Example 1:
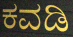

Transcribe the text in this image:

ಕವಡಿ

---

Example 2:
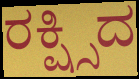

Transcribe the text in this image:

ರಕ್ಷ್ಸಿದ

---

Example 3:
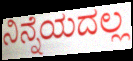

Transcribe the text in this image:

ನಿನ್ನೆಯದಲ್ಲ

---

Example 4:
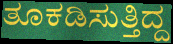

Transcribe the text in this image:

ತೂಕಡಿಸುತ್ತಿದ್ದ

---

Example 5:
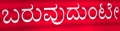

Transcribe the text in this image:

ಬರುವುದುಂಟೇ